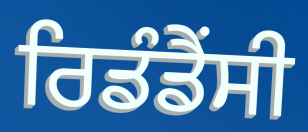
ਰਿਡੰਡੈਂਸੀ